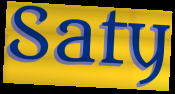
Saty